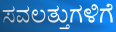
ಸವಲತ್ತುಗಳಿಗೆ